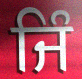
ਜਿੰ